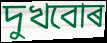
দুখবোৰ